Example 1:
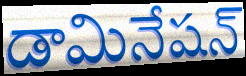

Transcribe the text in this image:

డామినేషన్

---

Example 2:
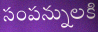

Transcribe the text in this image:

సంపన్నులకి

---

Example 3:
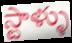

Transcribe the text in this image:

స్టాళ్ళు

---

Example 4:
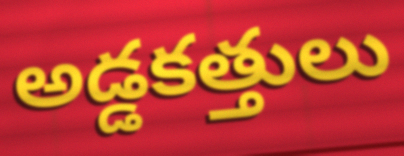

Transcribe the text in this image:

అడ్డకత్తులు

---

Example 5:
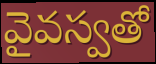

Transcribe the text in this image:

వైవస్వతో